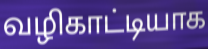
வழிகாட்டியாக